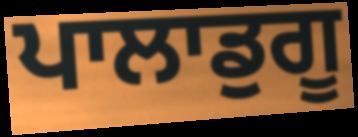
ਪਾਲਾਡੁਗੂ